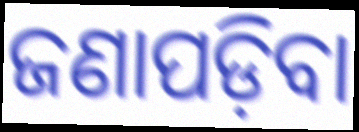
ଜଣାପଡ଼ିବା